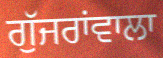
ਗੁੱਜਰਾਂਵਾਲਾ